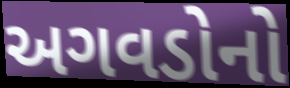
અગવડોનો